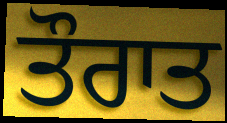
ਤੌਰਾਤ